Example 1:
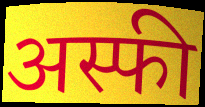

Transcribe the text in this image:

अस्फी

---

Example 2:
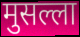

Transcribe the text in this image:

मुसल्ला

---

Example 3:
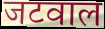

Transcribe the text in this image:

जटवाल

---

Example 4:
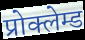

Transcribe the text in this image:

प्रोक्लेम्ड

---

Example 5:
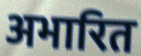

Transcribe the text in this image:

अभारित